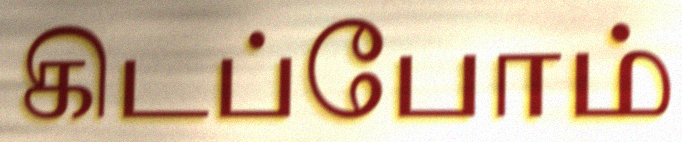
கிடப்போம்